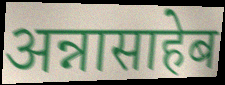
अन्नासाहेब